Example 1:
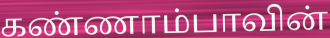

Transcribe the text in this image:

கண்ணாம்பாவின்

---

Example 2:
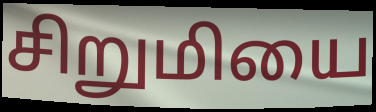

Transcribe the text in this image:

சிறுமியை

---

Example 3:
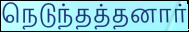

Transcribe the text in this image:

நெடுந்தத்தனார்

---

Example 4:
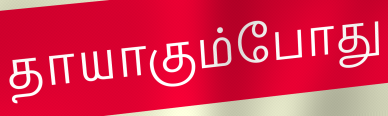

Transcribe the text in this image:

தாயாகும்போது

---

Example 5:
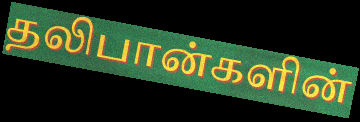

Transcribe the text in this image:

தலிபான்களின்